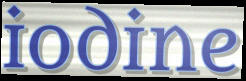
iodine